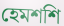
হেমশশি